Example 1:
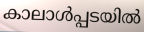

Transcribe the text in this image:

കാലാൾപ്പടയിൽ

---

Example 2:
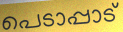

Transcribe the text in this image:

പെടാപ്പാട്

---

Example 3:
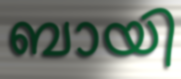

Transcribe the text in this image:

ബായി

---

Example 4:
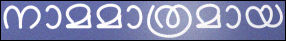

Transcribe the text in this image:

നാമമാത്രമായ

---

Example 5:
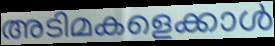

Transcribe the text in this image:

അടിമകളെക്കാൾ